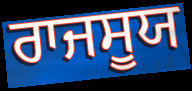
ਰਾਜਸੂਯ